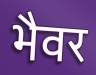
भैवर